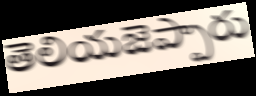
తెలియజెప్పారు